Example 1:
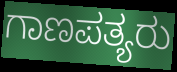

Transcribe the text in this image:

ಗಾಣಪತ್ಯರು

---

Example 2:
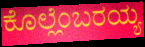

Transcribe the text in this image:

ಕೊಲ್ಲೆಂಬರಯ್ಯ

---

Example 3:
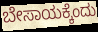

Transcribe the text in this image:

ಬೇಸಾಯಕ್ಕೆಂದು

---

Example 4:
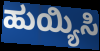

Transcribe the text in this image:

ಹುಯ್ಯಿಸಿ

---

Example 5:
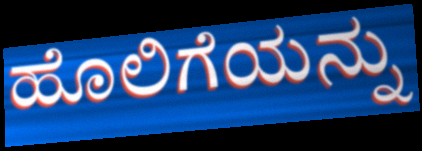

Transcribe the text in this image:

ಹೊಲಿಗೆಯನ್ನು